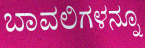
ಬಾವಲಿಗಳನ್ನೂ